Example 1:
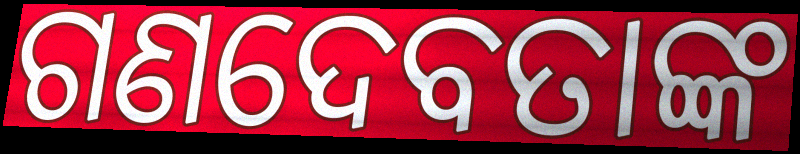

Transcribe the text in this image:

ଗଣଦେବତାଙ୍କ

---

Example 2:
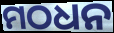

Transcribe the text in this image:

ମଠଧନ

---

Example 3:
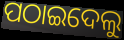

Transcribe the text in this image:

ପଠାଇଦେଲୁ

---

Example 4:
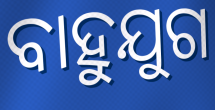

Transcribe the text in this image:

ବାହୁଯୁଗ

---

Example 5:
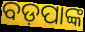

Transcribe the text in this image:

ବଡ଼ପାଙ୍କ